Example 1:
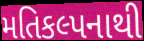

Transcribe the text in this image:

મતિકલ્પનાથી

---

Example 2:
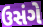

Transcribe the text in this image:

ઉસંગે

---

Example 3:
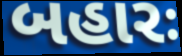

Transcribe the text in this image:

બહારઃ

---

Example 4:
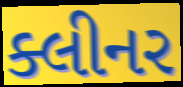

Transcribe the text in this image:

ક્લીનર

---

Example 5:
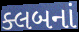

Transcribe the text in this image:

ક્લબનાં